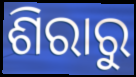
ଶିରାରୁ